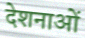
देशनाओं